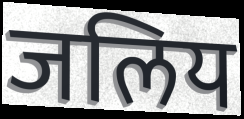
जलिय